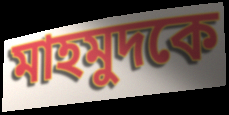
মাহমুদকে